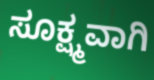
ಸೂಕ್ಷ್ಮವಾಗಿ